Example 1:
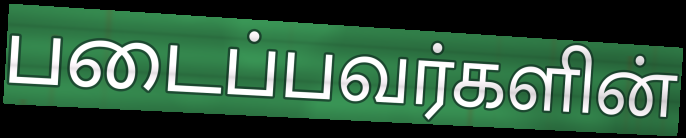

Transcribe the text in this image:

படைப்பவர்களின்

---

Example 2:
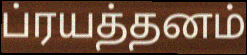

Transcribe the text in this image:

ப்ரயத்தனம்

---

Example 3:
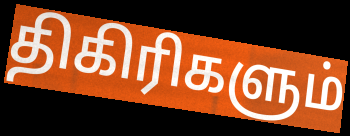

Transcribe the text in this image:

திகிரிகளும்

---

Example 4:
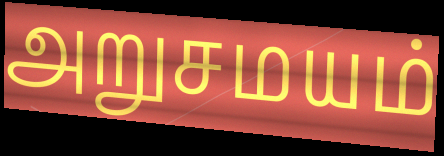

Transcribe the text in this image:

அறுசமயம்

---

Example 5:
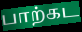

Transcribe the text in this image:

பாற்கட